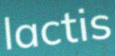
lactis